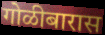
गोळीबारास